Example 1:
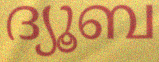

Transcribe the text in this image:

ദ്യൂബ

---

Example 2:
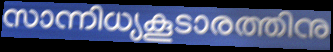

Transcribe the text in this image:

സാന്നിധ്യകൂടാരത്തിനു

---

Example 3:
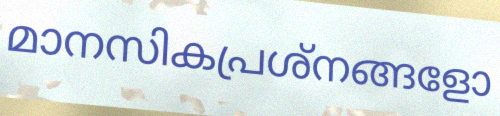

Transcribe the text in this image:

മാനസികപ്രശ്നങ്ങളോ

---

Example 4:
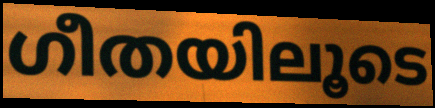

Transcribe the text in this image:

ഗീതയിലൂടെ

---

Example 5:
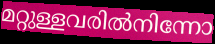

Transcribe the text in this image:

മറ്റുള്ളവരിൽനിന്നോ